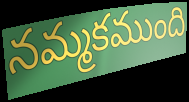
నమ్మకముంది